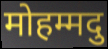
मोहम्मदु